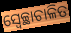
ସ୍ୱେଚ୍ଛାଚାଳିତ